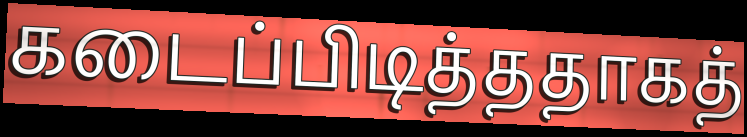
கடைப்பிடித்ததாகத்